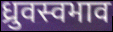
ध्रुवस्वभाव